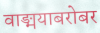
वाङ्मयाबरोबर